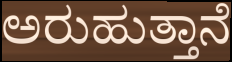
ಅರುಹುತ್ತಾನೆ